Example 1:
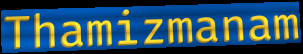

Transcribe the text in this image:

Thamizmanam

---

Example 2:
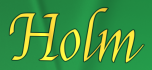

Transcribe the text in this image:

Holm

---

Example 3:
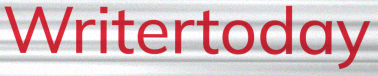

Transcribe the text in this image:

Writertoday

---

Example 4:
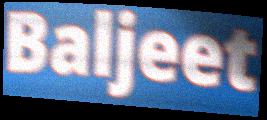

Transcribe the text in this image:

Baljeet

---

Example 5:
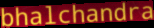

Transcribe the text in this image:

bhalchandra